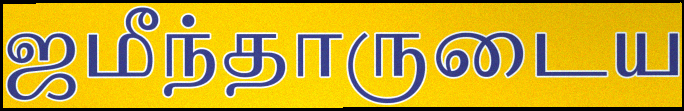
ஜமீந்தாருடைய